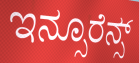
ಇನ್ಸೂರೆನ್ಸ್